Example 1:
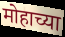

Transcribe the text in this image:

मोहाच्या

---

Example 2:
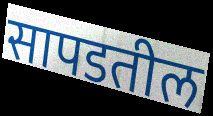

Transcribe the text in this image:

सापडतील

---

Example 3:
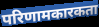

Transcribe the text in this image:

परिणामकारकता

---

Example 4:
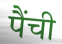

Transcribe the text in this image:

पैंची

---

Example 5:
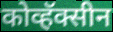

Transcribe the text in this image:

कोव्हॅक्सीन